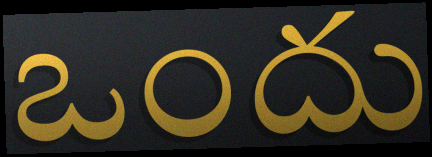
ఒందు